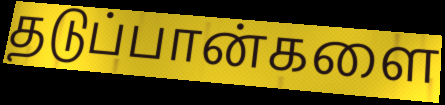
தடுப்பான்களை